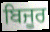
ਬਿਜੂਰ